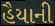
હૈયાની